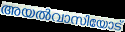
അയൽവാസിയോട്